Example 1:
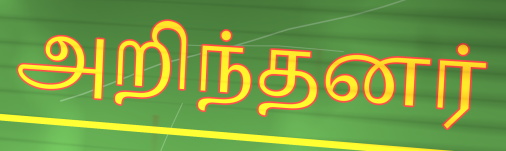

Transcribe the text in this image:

அறிந்தனர்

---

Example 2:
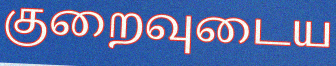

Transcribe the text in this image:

குறைவுடைய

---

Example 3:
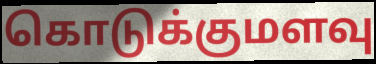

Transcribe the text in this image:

கொடுக்குமளவு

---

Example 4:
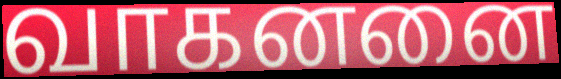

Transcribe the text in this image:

வாகனனை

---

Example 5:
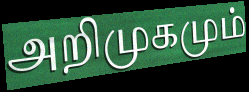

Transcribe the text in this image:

அறிமுகமும்